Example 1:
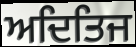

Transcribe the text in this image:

ਅਦਿਤਿਜ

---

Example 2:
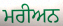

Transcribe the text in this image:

ਮਰੀਅਨ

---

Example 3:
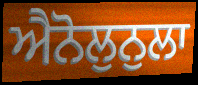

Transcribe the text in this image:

ਐਨੋਲੁਨੁਲਾ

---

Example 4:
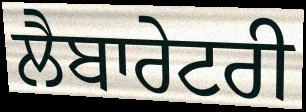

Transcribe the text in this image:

ਲੈਬਾਰੇਟਰੀ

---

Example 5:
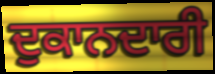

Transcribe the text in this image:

ਦੁਕਾਨਦਾਰੀ